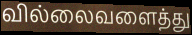
வில்லைவளைத்து